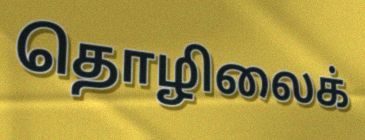
தொழிலைக்